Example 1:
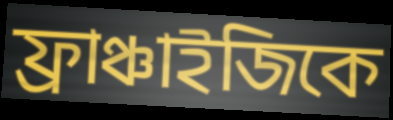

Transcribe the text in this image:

ফ্রাঞ্চাইজিকে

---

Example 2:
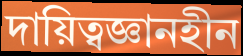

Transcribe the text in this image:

দায়িত্বজ্ঞানহীন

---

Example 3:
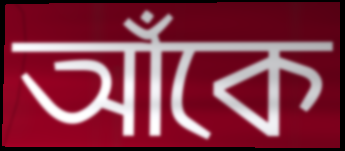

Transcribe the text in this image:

আঁকে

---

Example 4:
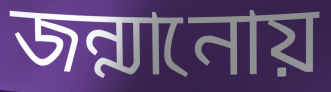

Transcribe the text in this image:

জন্মানোয়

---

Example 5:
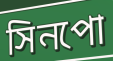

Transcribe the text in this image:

সিনপো